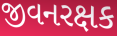
જીવનરક્ષક